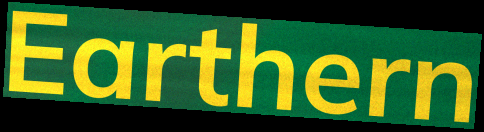
Earthern